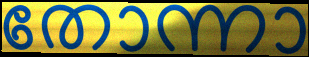
തോന്നാ